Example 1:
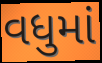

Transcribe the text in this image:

વધુમાં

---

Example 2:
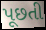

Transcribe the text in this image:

પૂછતી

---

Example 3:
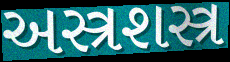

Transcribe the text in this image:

અસ્ત્રશસ્ત્ર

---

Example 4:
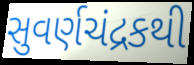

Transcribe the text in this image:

સુવર્ણચંદ્રકથી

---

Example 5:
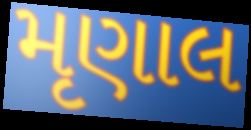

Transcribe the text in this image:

મૃણાલ